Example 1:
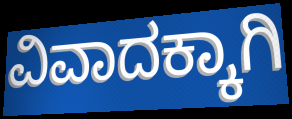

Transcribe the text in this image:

ವಿವಾದಕ್ಕಾಗಿ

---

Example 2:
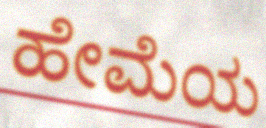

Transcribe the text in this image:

ಹೇಮೆಯ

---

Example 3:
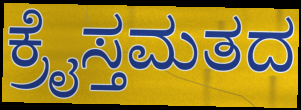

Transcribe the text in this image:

ಕ್ರೈಸ್ತಮತದ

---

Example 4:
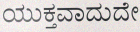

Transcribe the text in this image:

ಯುಕ್ತವಾದುದೇ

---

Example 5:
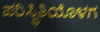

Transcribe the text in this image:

ಪರಿಸ್ಥಿತಿಯೊಳಗ